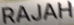
RAJAH